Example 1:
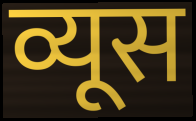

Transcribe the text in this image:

व्यूस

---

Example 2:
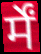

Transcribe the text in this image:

र्में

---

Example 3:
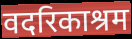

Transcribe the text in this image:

वदरिकाश्रम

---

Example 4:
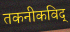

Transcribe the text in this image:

तकनीकविद्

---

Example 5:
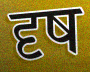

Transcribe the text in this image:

दृष